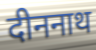
दीननाथ